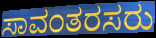
ಸಾವಂತರಸರು